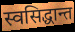
स्वसिद्धान्त